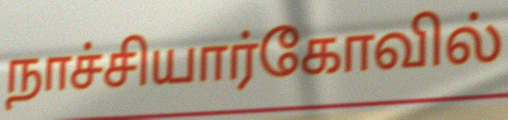
நாச்சியார்கோவில்